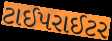
ટાઈપરાઈટર